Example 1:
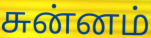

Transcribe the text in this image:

சுன்னம்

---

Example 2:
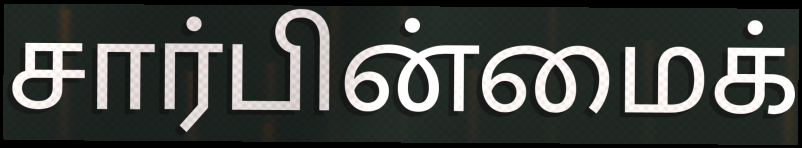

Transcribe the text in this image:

சார்பின்மைக்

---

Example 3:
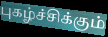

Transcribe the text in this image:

புகழ்ச்சிக்கும்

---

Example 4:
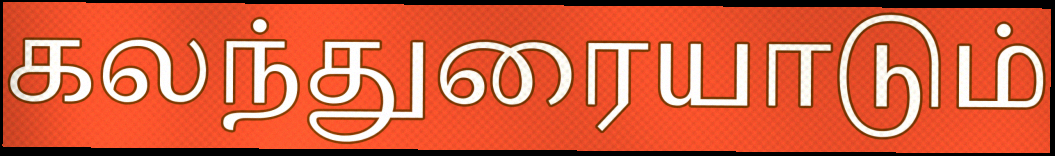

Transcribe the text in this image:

கலந்துரையாடும்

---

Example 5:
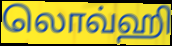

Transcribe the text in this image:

லொவ்ஹி